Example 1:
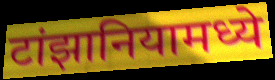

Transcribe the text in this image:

टांझानियामध्ये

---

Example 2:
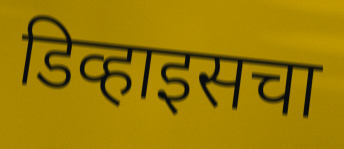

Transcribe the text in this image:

डिव्हाइसचा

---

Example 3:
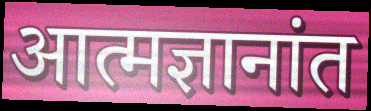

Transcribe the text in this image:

आत्मज्ञानांत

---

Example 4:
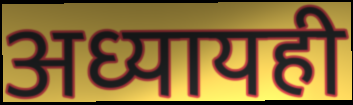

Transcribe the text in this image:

अध्यायही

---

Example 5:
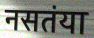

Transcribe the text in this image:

नसतंया